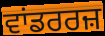
ਵਾਂਡਰਰਜ਼